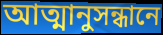
আত্মানুসন্ধানে